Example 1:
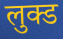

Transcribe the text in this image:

लुक्ड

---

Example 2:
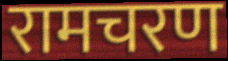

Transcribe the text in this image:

रामचरण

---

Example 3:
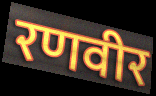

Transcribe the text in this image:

रणवीर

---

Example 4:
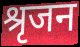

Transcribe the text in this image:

श्रृजन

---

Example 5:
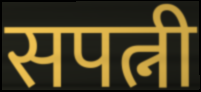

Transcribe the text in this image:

सपत्नी